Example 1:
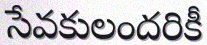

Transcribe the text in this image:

సేవకులందరికీ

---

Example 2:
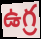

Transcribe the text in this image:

ఉగ్ర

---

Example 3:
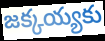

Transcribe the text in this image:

జక్కయ్యకు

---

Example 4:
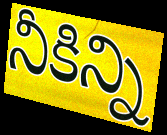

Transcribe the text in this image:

నీకిన్ని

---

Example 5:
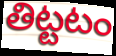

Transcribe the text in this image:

తిట్టటం